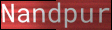
Nandpur